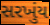
સરખુંય